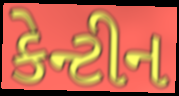
કેન્ટીન